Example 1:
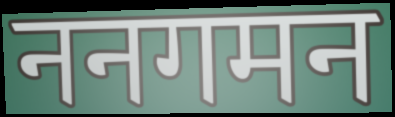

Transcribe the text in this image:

ननगमन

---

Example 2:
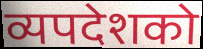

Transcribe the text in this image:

व्यपदेशको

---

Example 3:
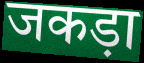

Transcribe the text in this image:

जकड़ा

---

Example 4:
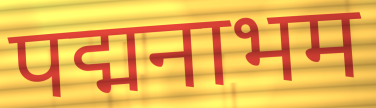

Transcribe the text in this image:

पद्मनाभम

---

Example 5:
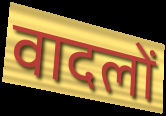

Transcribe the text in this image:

वादलों